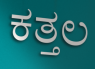
ಕತ್ತಲ